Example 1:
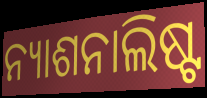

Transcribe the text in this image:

ନ୍ୟାଶନାଲିଷ୍ଟ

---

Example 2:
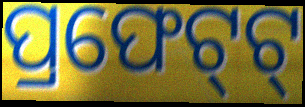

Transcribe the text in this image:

ପ୍ରଫେଟ୍‌ଟ୍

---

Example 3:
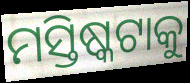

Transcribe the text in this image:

ମସ୍ତିଷ୍କଟାକୁ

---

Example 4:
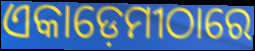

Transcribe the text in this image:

ଏକାଡ଼େମୀଠାରେ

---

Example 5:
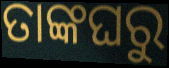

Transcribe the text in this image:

ତାଙ୍କଘରୁ